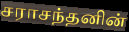
சராசந்தனின்